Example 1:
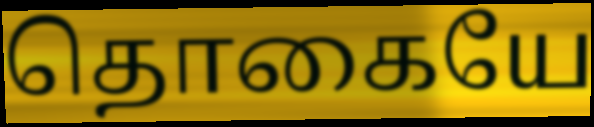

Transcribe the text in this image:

தொகையே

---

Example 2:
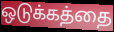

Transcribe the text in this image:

ஒடுக்கத்தை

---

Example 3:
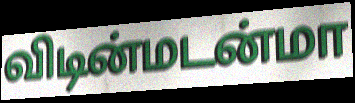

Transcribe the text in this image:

விடின்மடன்மா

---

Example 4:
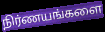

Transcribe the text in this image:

நிர்ணயங்களை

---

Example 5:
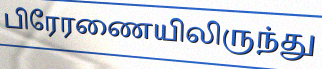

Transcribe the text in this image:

பிரேரணையிலிருந்து